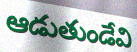
ఆడుతుండేవి